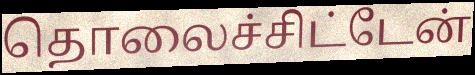
தொலைச்சிட்டேன்